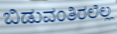
ಬಿಡುವಂತಿರಲಿಲ್ಲ